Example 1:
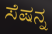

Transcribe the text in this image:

ಸೆಷನ್ನ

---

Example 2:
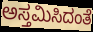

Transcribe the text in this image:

ಅಸ್ತಮಿಸಿದಂತೆ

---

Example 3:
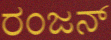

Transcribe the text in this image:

ರಂಜನ್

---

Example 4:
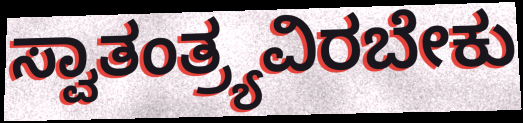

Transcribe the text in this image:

ಸ್ವಾತಂತ್ರ್ಯವಿರಬೇಕು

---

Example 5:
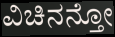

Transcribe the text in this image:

ವಿಚಿನನ್ತೋ